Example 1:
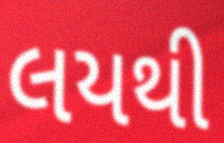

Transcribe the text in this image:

લયથી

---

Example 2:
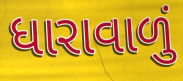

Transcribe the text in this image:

ધારાવાળું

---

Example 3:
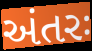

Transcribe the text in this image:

અંતરઃ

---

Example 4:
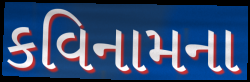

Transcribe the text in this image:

કવિનામના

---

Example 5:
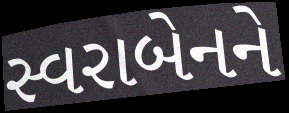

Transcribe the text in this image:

સ્વરાબેનને